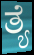
ತ್ಯೆ